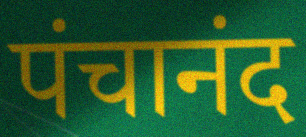
पंचानंद